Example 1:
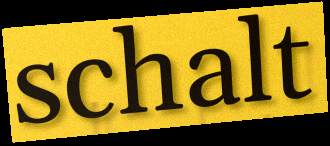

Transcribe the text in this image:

schalt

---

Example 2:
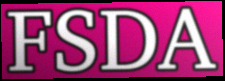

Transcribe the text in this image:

FSDA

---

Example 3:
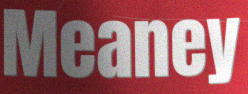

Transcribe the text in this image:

Meaney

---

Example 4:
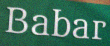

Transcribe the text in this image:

Babar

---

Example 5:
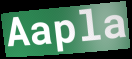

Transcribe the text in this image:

Aapla